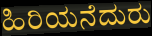
ಹಿರಿಯನೆದುರು